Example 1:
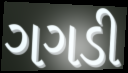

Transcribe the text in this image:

ગગડી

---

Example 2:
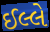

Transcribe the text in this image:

ઈલ્લે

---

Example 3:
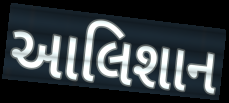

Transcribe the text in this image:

આલિશાન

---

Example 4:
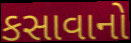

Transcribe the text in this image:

કસાવાનો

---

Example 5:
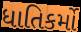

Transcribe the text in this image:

ધાતિકર્મો